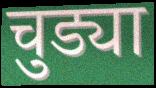
चुड्या